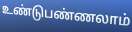
உண்டுபண்ணலாம்